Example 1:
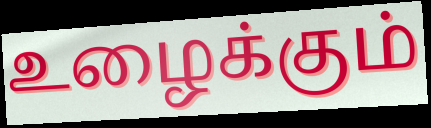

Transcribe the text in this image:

உழைக்கும்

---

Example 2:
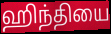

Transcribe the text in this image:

ஹிந்தியை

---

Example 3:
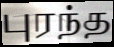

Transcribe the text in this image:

புரந்த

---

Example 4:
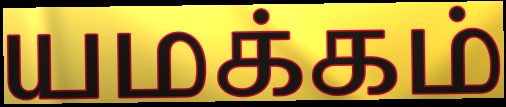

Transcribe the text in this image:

யமக்கம்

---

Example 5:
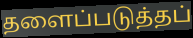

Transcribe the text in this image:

தளைப்படுத்தப்